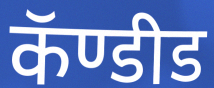
कॅण्डीड